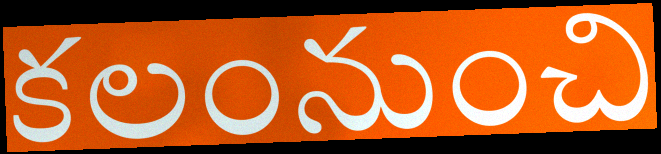
కలంనుంచి